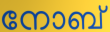
നോബ്